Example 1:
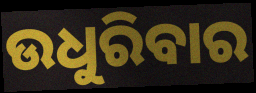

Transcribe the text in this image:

ଉଧୁରିବାର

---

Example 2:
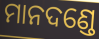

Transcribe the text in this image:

ମାନଦଣ୍ଡେ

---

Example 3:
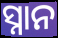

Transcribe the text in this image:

ସ୍ନାନ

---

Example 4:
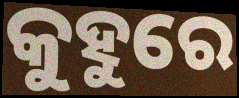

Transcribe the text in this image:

କୁହୁରେ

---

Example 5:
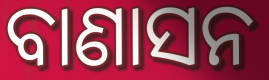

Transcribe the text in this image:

ବାଣାସନ